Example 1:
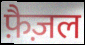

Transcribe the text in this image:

फ़ैज़ल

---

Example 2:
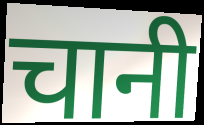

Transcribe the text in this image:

चानी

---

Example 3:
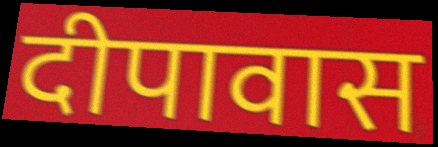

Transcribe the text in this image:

दीपावास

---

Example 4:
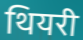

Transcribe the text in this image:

थियरी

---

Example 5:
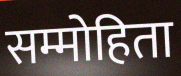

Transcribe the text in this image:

सम्मोहिता